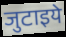
जुटाइये